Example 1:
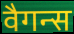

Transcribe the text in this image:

वैगन्स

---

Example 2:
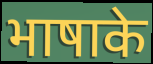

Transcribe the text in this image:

भाषाके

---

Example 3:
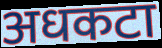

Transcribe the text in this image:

अधकटा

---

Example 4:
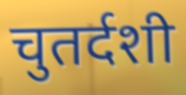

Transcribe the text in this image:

चुतर्दशी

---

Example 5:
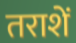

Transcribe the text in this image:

तराशें